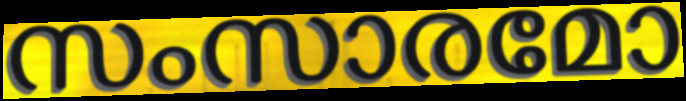
സംസാരമോ